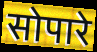
सोपारे